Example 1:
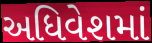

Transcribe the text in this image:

અધિવેશમાં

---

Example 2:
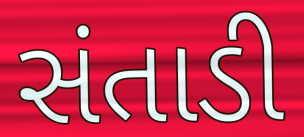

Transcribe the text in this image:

સંતાડી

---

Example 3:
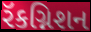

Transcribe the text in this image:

રૅકગ્નિશન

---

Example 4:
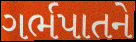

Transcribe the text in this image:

ગર્ભપાતને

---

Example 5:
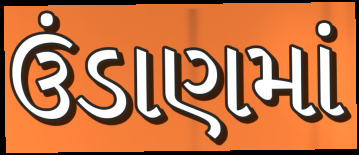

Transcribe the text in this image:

ઉંડાણમાં